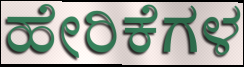
ಹೇರಿಕೆಗಳ